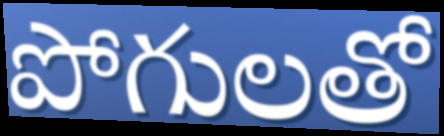
పోగులతో